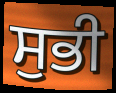
ਸੁਭੀ